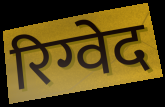
रिग्वेद